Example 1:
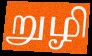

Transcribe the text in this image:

றுழி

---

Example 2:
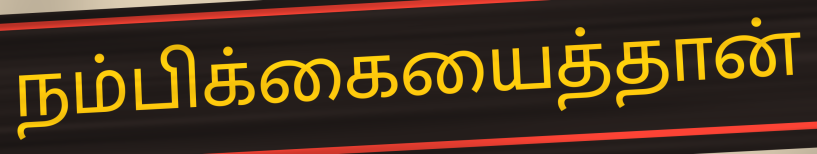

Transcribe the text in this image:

நம்பிக்கையைத்தான்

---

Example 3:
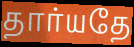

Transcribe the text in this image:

தார்யதே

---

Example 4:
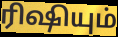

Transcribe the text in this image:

ரிஷியும்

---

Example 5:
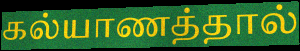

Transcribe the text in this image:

கல்யாணத்தால்